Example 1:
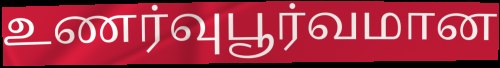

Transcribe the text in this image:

உணர்வுபூர்வமான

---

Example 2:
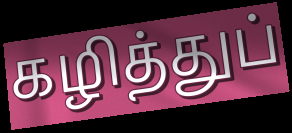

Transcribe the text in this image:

கழித்துப்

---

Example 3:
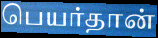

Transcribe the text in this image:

பெயர்தான்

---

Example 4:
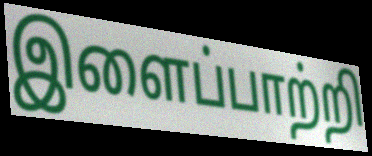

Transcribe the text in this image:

இளைப்பாற்றி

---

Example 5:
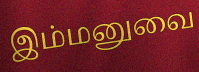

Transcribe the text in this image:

இம்மனுவை